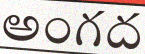
అంగద